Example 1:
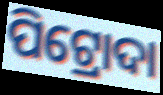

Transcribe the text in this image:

ପିଟ୍ରୋଦା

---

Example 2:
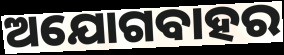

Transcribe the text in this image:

ଅଯୋଗବାହର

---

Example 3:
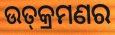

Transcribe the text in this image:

ଉତ୍‍କ୍ରମଣର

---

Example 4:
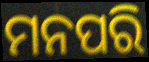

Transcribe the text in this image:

ମନପରି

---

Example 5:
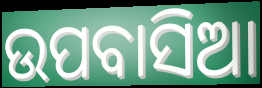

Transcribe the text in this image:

ଉପବାସିଆ